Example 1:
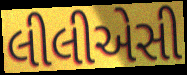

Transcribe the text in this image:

લીલીએસી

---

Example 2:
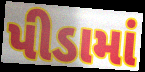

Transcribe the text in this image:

પીડામાં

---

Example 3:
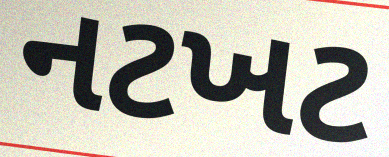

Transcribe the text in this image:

નટખટ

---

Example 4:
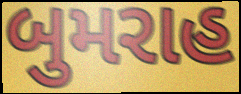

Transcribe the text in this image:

બુમરાહ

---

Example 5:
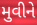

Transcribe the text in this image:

મુવીને